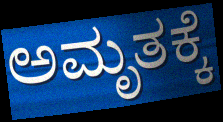
ಅಮೃತಕ್ಕೆ